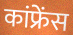
कांफ्रेंस